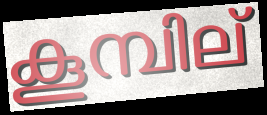
കൂമ്പില്